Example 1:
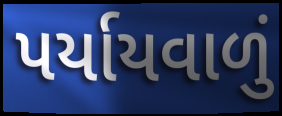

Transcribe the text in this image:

પર્યાયવાળું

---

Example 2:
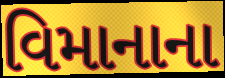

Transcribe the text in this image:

વિમાનાના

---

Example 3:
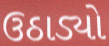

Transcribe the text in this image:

ઉઠાડ્યો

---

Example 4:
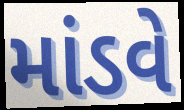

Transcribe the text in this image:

માંડવે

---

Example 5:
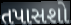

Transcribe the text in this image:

તપાસશો